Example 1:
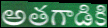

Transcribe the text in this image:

అతగాడికి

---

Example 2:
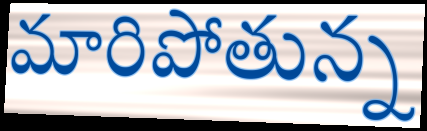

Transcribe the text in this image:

మారిపోతున్న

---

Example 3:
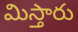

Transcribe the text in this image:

మిస్తారు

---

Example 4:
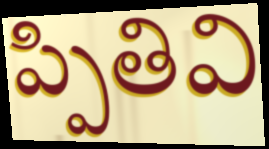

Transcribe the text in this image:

ప్పితివి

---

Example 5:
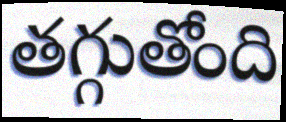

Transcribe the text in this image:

తగ్గుతోంది